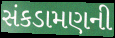
સંકડામણની